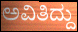
ಅವಿತಿದ್ದು